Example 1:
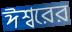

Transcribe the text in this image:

ঈশ্বরের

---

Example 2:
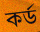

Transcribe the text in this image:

কর্ড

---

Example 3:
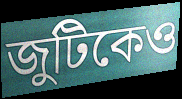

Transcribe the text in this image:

জুটিকেও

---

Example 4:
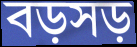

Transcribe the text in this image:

বড়সড়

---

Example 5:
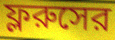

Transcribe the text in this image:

ফ্লরুসের